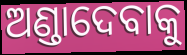
ଅଣ୍ଡାଦେବାକୁ